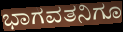
ಭಾಗವತನಿಗೂ